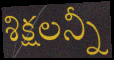
శిక్షలన్నీ